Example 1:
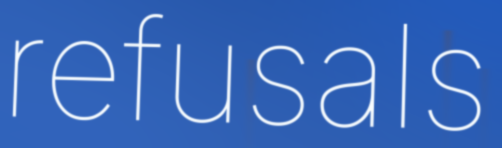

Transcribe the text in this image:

refusals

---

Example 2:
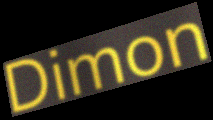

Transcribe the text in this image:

Dimon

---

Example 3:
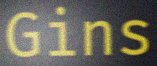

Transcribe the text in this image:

Gins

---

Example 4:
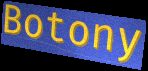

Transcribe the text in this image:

Botony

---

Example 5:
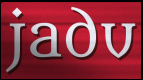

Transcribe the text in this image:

jadu